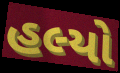
હલ્યો